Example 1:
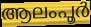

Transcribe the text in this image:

ആലംപൂർ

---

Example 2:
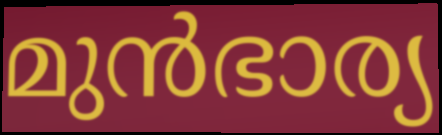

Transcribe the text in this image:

മുൻഭാര്യ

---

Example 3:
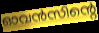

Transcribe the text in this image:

ഓവൻസിന്റെ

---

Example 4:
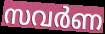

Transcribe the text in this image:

സവർണ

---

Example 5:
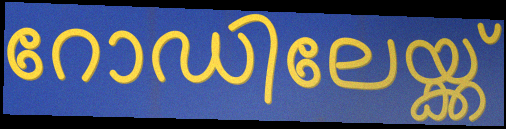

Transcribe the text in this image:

റോഡിലേയ്ക്ക്